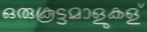
ഒരുകൂട്ടമാളുകള്